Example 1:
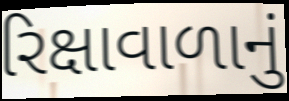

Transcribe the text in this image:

રિક્ષાવાળાનું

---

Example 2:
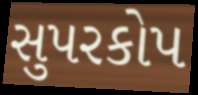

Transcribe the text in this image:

સુપરકોપ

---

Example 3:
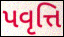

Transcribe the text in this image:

પવૃત્તિ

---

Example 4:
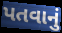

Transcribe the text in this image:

પતવાનું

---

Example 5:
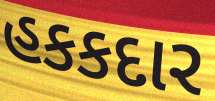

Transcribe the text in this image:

હકકદાર